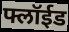
फ्लॉईड